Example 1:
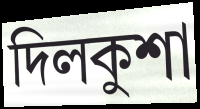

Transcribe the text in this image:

দিলকুশা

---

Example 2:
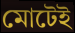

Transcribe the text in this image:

মোটেই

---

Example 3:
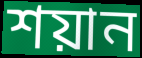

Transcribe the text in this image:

শয়ান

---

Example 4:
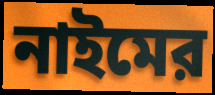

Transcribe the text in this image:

নাইমের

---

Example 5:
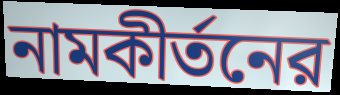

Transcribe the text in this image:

নামকীর্তনের